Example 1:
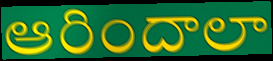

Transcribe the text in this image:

ఆరిందాలా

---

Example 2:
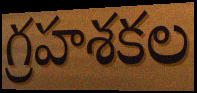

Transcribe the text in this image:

గ్రహశకల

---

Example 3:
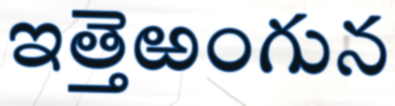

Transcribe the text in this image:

ఇత్తెఱంగున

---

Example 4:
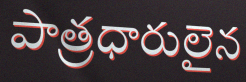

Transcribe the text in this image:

పాత్రధారులైన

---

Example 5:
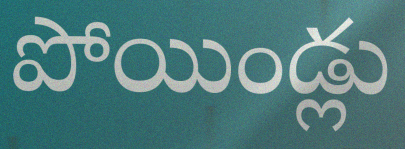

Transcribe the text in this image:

పోయిండ్లు